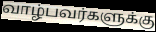
வாழ்பவர்களுக்கு